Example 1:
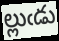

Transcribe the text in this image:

ల్లుఁడు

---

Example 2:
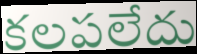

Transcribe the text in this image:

కలపలేదు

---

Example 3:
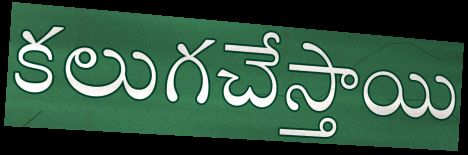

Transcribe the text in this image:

కలుగచేస్తాయి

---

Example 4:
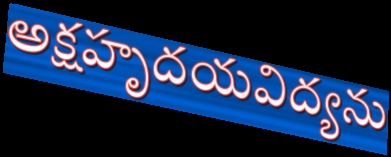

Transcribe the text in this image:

అక్షహృదయవిద్యను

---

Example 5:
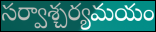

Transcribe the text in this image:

సర్వాశ్చర్యమయం